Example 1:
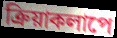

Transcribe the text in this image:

ক্রিয়াকলাপে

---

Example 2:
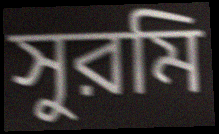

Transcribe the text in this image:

সুরমি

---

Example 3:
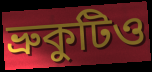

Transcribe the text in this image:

ভ্রুকুটিও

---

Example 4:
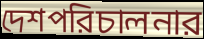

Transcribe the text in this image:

দেশপরিচালনার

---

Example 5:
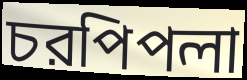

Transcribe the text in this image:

চরপিপলা